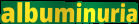
albuminuria